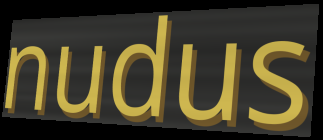
nudus